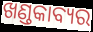
ଖଣ୍ଡକାବ୍ୟର